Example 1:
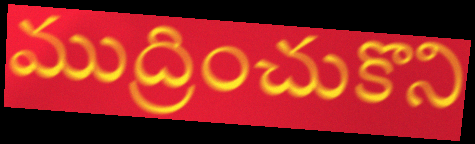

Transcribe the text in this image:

ముద్రించుకొని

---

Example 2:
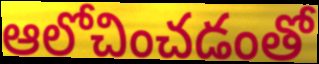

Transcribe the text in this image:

ఆలోచించడంతో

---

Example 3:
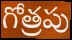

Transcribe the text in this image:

గోత్రపు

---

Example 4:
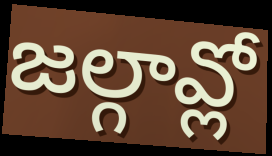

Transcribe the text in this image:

జల్గావ్లో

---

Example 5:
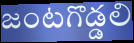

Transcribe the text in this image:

జంటగొడ్డలి